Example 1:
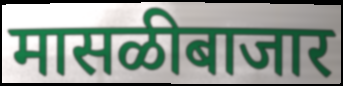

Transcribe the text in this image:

मासळीबाजार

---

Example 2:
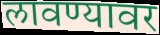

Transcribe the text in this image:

लावण्यावर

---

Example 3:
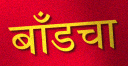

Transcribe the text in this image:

बाँडचा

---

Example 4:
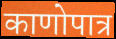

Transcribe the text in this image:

काणोपात्र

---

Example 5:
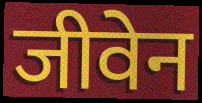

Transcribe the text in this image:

जीवेन